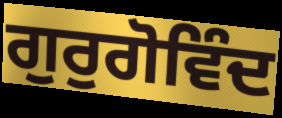
ਗੁਰੁਗੋਵਿੰਦ